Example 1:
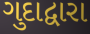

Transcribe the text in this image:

ગુદાદ્વારા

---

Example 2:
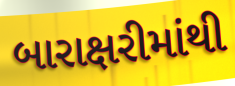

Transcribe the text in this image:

બારાક્ષરીમાંથી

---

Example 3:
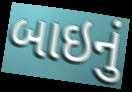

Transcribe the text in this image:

બાઇનું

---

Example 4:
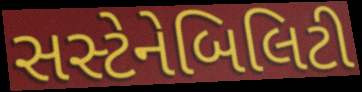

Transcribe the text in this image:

સસ્ટેનેબિલિટી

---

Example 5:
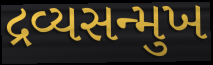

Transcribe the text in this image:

દ્રવ્યસન્મુખ